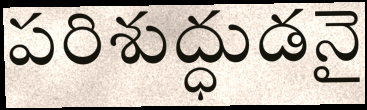
పరిశుద్ధుడనై